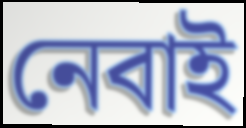
নেবাই